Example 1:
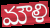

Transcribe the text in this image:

మౌళి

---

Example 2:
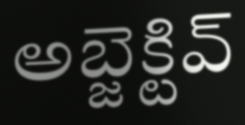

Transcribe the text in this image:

అబ్జెక్టివ్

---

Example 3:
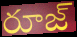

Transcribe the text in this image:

రూజ్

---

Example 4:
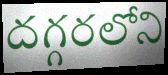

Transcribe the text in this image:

దగ్గరలోని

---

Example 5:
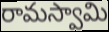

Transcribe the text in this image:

రామస్వామి